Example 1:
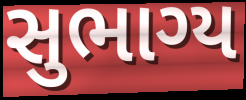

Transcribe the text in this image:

સુભાગ્ય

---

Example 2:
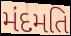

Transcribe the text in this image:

મંદમતિ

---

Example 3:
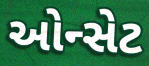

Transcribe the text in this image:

ઓન્સેટ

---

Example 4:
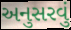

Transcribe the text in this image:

અનુસરવું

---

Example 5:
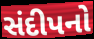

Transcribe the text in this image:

સંદીપનો